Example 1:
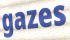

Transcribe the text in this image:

gazes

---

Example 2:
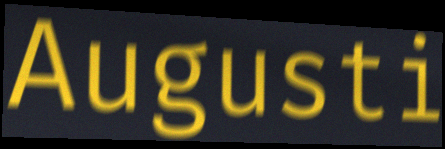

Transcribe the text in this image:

Augusti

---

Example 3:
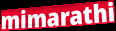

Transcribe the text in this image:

mimarathi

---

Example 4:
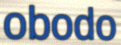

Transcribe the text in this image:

obodo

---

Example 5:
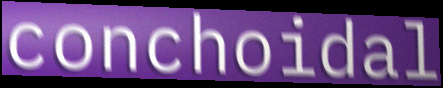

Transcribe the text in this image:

conchoidal